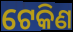
ଟେକିଣ